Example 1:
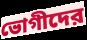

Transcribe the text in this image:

ভোগীদের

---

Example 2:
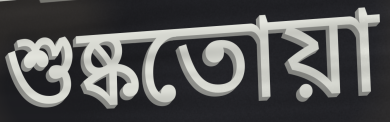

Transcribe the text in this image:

শুষ্কতোয়া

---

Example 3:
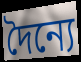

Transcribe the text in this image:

দৈন্যে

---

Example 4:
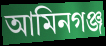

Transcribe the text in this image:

আমিনগঞ্জ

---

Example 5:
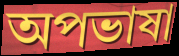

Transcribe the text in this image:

অপভাষা